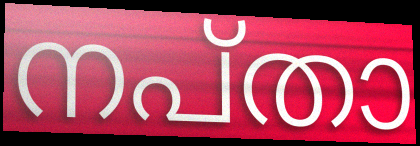
നപ്താ